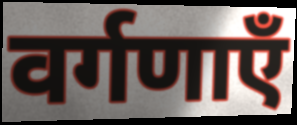
वर्गणाएँ